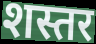
शस्तर